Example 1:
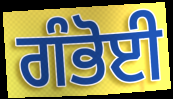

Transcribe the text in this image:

ਗੰਭੋਈ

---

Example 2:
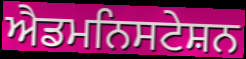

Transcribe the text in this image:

ਐਡਮਨਿਸਟੇਸ਼ਨ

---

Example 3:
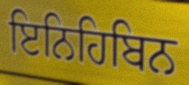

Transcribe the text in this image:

ਇਨਿਹਿਬਿਨ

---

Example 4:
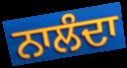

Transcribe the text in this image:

ਨਾਲੰਦਾ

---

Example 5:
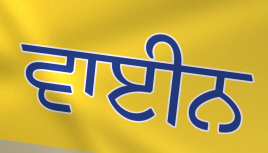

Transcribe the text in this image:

ਵਾਈਨ